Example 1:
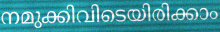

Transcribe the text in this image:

നമുക്കിവിടെയിരിക്കാം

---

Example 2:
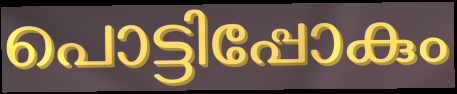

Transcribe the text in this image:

പൊട്ടിപ്പോകും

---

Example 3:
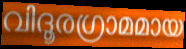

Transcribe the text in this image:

വിദൂരഗ്രാമമായ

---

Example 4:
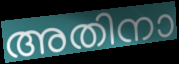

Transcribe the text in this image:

അതിനാ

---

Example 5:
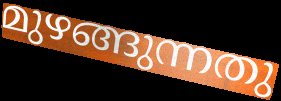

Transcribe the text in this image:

മുഴങ്ങുന്നതു